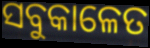
ସବୁକାଳେତ